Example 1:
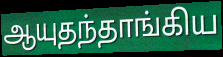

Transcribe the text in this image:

ஆயுதந்தாங்கிய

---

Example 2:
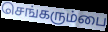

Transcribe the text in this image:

செங்கரும்பை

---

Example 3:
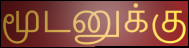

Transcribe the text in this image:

மூடனுக்கு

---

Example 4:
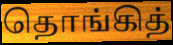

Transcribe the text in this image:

தொங்கித்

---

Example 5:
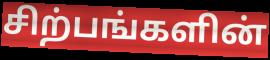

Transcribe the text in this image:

சிற்பங்களின்